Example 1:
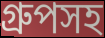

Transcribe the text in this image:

গ্রুপসহ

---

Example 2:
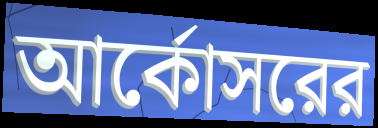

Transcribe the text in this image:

আর্কোসরের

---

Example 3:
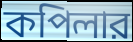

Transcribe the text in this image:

কপিলার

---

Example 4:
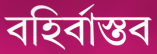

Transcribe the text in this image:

বহির্বাস্তব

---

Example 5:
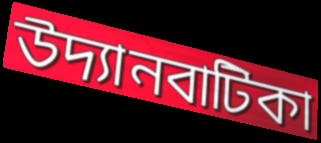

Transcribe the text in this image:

উদ্যানবাটিকা